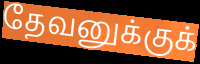
தேவனுக்குக்